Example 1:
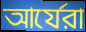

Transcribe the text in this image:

আর্যেরা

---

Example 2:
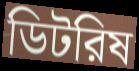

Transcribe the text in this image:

ডিটরিষ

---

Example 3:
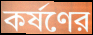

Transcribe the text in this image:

কর্ষণের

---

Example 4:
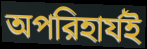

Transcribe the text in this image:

অপরিহার্যই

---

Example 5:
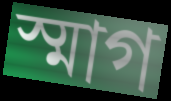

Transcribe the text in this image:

স্মাগ